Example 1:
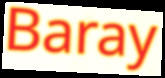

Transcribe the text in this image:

Baray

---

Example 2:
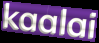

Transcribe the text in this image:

kaalai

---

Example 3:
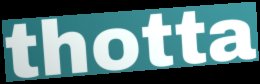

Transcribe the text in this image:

thotta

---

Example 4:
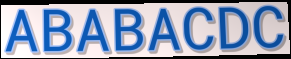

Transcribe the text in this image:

ABABACDC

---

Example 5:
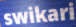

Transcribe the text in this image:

swikari